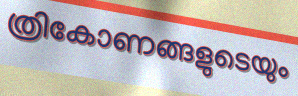
ത്രികോണങ്ങളുടെയും